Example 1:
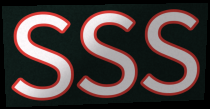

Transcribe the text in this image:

SSS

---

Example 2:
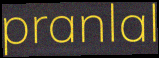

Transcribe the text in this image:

pranlal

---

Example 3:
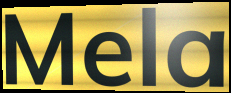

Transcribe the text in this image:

Mela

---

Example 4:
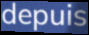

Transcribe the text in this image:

depuis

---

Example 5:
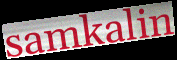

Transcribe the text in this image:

samkalin